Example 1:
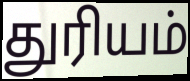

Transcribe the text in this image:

துரியம்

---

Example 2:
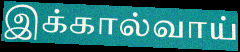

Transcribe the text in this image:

இக்கால்வாய்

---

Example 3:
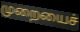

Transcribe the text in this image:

முறையைச்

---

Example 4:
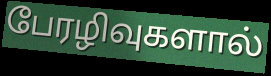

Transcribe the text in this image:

பேரழிவுகளால்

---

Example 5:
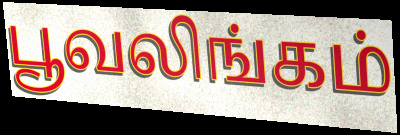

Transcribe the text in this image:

பூவலிங்கம்